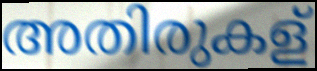
അതിരുകള്